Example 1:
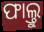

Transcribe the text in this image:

ଫାଲ୍ତୁ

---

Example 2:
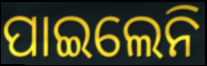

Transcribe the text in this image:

ପାଇଲେନି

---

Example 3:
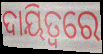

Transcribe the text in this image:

ଦାୟିତ୍ୱରେ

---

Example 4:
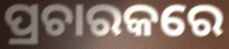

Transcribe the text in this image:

ପ୍ରଚାରକରେ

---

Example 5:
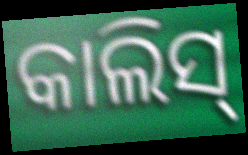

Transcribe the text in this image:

କାଲିସ୍